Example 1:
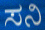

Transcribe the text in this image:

ಸನಿ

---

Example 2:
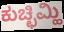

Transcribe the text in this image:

ಕುಚ್ಛಿಮ್ಹಿ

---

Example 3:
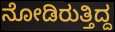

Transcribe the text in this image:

ನೋಡಿರುತ್ತಿದ್ದ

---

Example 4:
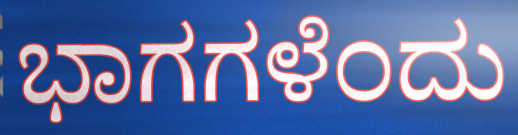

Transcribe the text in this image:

ಭಾಗಗಳೆಂದು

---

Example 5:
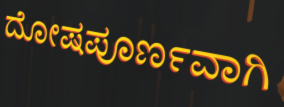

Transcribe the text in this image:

ದೋಷಪೂರ್ಣವಾಗಿ